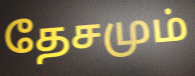
தேசமும்